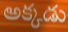
అక్కడు